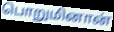
பொறுமினான்